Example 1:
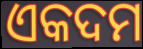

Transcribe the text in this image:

ଏକଦମ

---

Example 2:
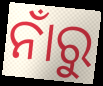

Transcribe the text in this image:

ନାଁରୁ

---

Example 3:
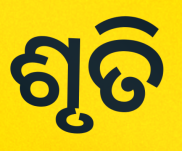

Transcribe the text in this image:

ଶୃତି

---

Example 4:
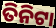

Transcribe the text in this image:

ତିନିଟା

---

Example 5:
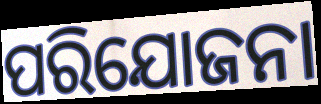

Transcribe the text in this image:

ପରିଯୋଜନା